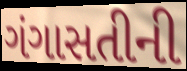
ગંગાસતીની